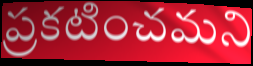
ప్రకటించమని